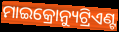
ମାଇକ୍ରୋନ୍ୟୁଟ୍ରିଏଣ୍ଟ